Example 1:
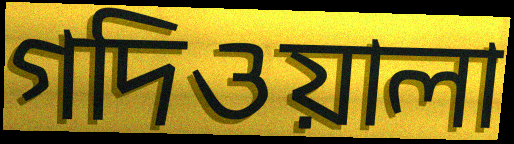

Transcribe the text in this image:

গদিওয়ালা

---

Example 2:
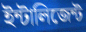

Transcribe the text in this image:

ইন্টালিজেন্ট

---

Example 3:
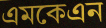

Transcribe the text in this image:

এমকেএন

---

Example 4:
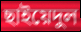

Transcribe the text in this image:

ছাইয়েদুল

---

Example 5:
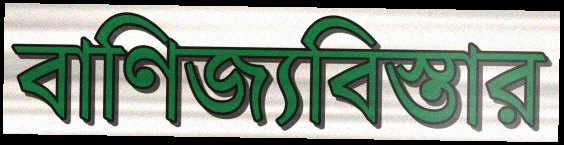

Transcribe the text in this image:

বাণিজ্যবিস্তার